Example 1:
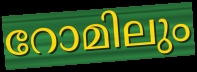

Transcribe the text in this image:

റോമിലും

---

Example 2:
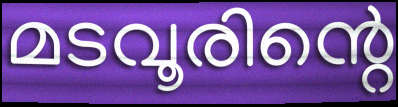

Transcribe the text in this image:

മടവൂരിന്റെ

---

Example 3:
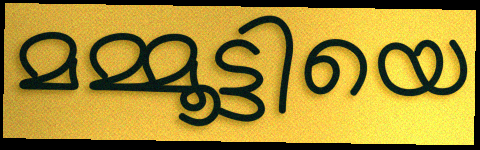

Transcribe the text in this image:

മമ്മൂട്ടിയെ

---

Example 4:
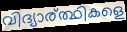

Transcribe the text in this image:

വിദ്യാര്ത്ഥികളെ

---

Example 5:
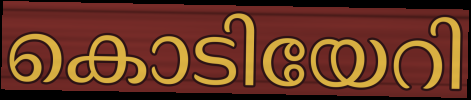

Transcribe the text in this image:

കൊടിയേറി